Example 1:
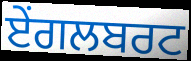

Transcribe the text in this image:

ਏਂਗਲਬਰਟ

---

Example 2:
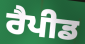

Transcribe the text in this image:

ਰੈਪੀਡ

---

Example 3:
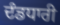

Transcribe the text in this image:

ਦੰਡਧਾਰੀ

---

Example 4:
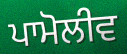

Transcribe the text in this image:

ਪਾਮੋਲੀਵ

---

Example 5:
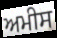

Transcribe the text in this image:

ਅਮੀਸ